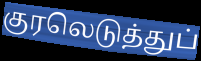
குரலெடுத்துப்